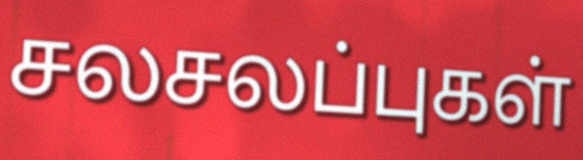
சலசலப்புகள்